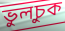
ভুলচুক